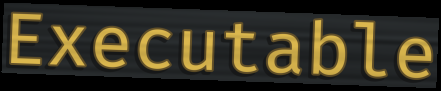
Executable